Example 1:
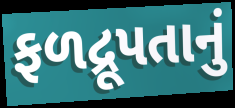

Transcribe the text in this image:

ફળદ્રૂપતાનું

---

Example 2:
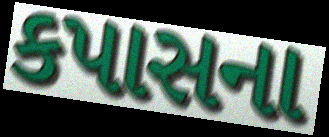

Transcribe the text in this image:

કપાસના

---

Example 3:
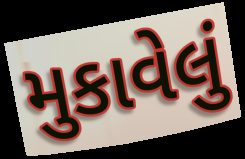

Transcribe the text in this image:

મુકાવેલું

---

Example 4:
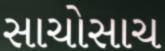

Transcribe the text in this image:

સાચોસાચ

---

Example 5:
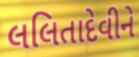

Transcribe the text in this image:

લલિતાદેવીને